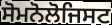
ਸੋਮਨੋਲੋਜਿਸਟ